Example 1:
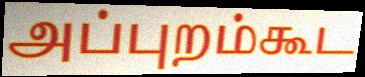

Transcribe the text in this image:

அப்புறம்கூட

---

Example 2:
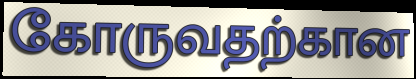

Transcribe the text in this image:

கோருவதற்கான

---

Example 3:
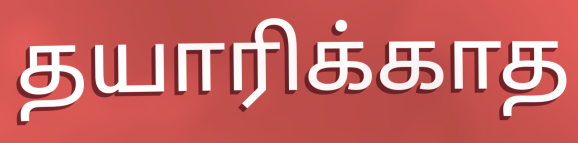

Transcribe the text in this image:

தயாரிக்காத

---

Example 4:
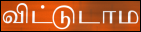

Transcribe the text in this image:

விட்டுடாம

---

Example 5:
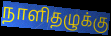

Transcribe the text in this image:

நாளிதழுக்கு